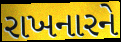
રાખનારને